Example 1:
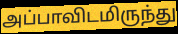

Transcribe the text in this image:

அப்பாவிடமிருந்து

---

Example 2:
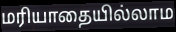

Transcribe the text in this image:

மரியாதையில்லாம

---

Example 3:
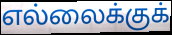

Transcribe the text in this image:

எல்லைக்குக்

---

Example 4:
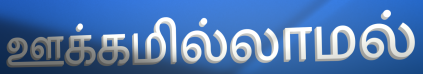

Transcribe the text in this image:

ஊக்கமில்லாமல்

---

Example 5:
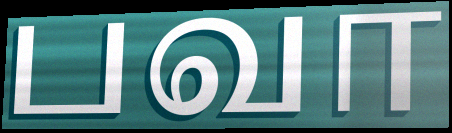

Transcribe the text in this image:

பவா